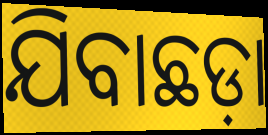
ଯିବାଛଡ଼ା